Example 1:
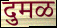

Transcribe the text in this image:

दुमळ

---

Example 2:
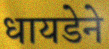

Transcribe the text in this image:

धायडेने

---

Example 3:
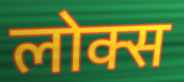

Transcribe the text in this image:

लोक्स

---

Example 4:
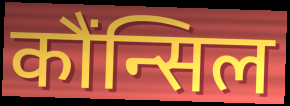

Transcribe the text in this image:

कौंन्सिल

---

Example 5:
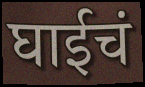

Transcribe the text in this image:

घाईचं